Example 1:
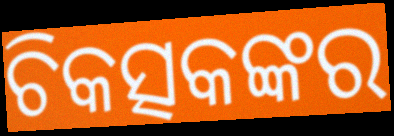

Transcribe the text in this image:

ଚିକତ୍ସକଙ୍କର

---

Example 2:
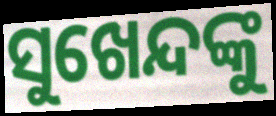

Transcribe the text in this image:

ସୁଖେନ୍ଦଙ୍କୁ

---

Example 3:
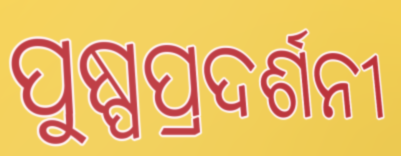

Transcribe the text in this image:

ପୁଷ୍ପପ୍ରଦର୍ଶନୀ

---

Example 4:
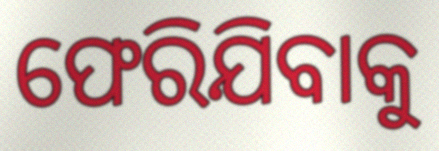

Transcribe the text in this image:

ଫେରିଯିବାକୁ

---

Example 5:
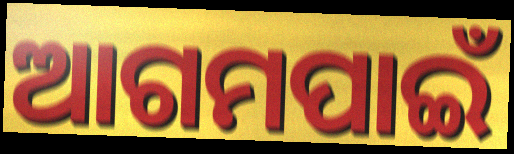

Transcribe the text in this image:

ଆଗମପାଇଁ